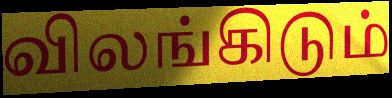
விலங்கிடும்